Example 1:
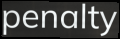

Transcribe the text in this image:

penalty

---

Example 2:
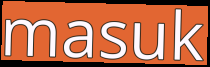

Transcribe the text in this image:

masuk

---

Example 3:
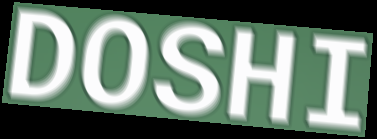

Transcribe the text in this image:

DOSHI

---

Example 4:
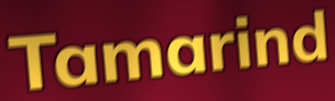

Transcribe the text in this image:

Tamarind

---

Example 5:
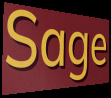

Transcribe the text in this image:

Sage